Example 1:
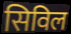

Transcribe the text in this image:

सिविल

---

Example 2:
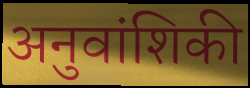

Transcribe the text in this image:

अनुवांशिकी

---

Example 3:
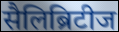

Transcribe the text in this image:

सैलिब्रिटीज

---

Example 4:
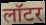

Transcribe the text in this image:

लॉटर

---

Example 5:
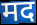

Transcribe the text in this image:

मद